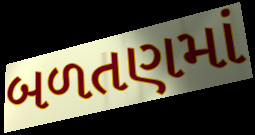
બળતણમાં